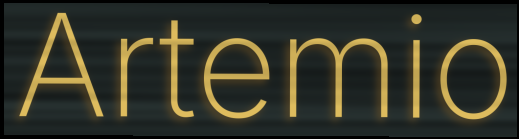
Artemio